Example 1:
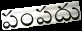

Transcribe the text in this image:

పంపదు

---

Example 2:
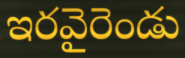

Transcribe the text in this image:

ఇరవైరెండు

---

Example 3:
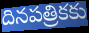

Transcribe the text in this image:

దినపత్రికకు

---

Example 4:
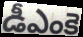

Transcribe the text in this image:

డీఎంకె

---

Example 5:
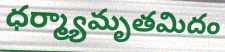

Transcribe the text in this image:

ధర్మ్యామృతమిదం